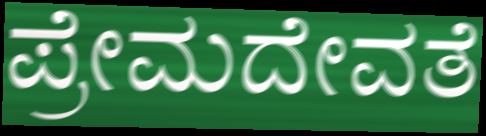
ಪ್ರೇಮದೇವತೆ